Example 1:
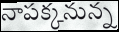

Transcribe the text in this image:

నాపక్కనున్న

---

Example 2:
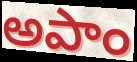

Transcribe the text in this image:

అపాం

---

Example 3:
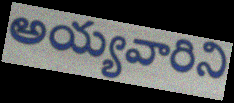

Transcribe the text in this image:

అయ్యవారిని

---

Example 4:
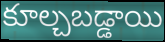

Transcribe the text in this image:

కూల్చబడ్డాయి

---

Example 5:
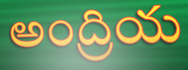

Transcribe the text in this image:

అంద్రియ